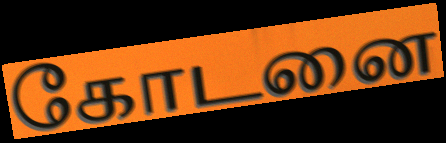
கோடனை